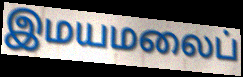
இமயமலைப்